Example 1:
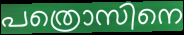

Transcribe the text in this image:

പത്രൊസിനെ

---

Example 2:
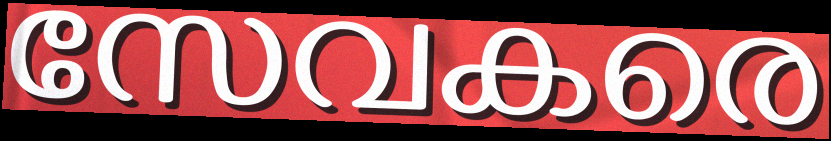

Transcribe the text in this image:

സേവകരെ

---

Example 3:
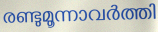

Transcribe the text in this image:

രണ്ടുമൂന്നാവർത്തി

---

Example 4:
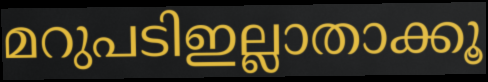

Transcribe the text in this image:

മറുപടിഇല്ലാതാക്കൂ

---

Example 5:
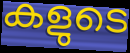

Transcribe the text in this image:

കളുടെ